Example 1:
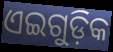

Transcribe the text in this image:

ଏଇଗୁଡ଼ିକ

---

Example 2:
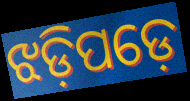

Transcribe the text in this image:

ଝଡ଼ିପଡ଼େ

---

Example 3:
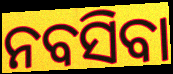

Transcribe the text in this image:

ନବସିବା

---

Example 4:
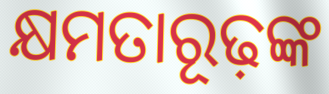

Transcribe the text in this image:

କ୍ଷମତାରୂଢ଼ଙ୍କ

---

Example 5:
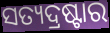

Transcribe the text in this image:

ସତ୍ୟଦ୍ରଷ୍ଟାର